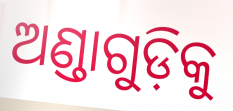
ଅଣ୍ଡାଗୁଡ଼ିକୁ